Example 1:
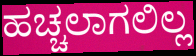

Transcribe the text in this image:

ಹಚ್ಚಲಾಗಲಿಲ್ಲ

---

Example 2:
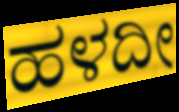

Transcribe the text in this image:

ಹಳದೀ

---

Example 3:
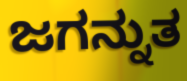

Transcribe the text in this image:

ಜಗನ್ನುತ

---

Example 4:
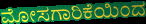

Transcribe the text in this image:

ಮೋಸಗಾರಿಕೆಯಿಂದ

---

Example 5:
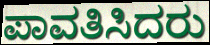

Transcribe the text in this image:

ಪಾವತಿಸಿದರು